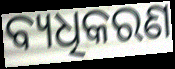
ବ୍ୟଧିକରଣ